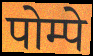
पोम्पे